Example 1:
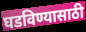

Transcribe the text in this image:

घडविण्यासाठी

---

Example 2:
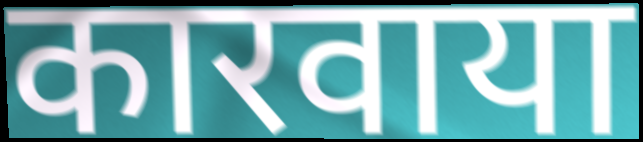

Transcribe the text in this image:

कारवाया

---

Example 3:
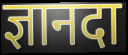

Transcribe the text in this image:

ज्ञानदा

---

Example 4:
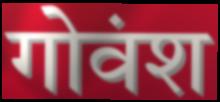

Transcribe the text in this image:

गोवंश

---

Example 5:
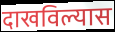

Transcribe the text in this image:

दाखविल्यास